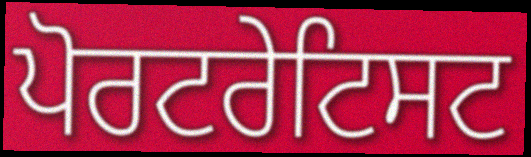
ਪੋਰਟਰੇਟਿਸਟ